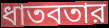
ধাতবতার